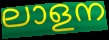
ലാളന